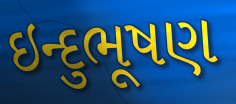
ઇન્દુભૂષણ